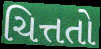
ચિત્તતો